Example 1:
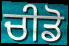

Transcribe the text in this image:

ਚੀਡੋ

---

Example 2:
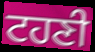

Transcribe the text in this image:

ਟਹਣੀ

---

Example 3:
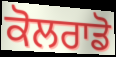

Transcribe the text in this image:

ਕੋਲਰਾਡੋ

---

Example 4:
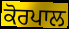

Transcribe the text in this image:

ਕੋਰਪਾਲ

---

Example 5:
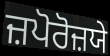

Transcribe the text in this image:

ਜ਼ਪੋਰੋਜ਼ਯੇ